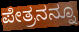
ಪೇತ್ರನನ್ನೂ